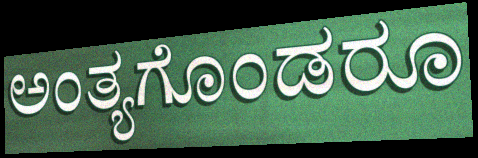
ಅಂತ್ಯಗೊಂಡರೂ